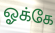
ஓக்கே